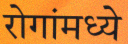
रोगांमध्ये